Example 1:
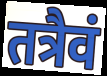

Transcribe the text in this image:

तत्रैवं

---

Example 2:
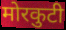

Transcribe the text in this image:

मोरकुटी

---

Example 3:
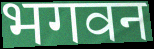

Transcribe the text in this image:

भगवन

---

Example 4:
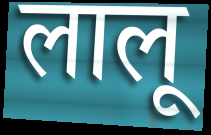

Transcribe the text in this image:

लालू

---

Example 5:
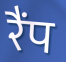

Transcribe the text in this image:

रैंप